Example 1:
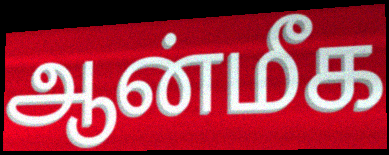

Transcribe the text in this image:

ஆன்மீக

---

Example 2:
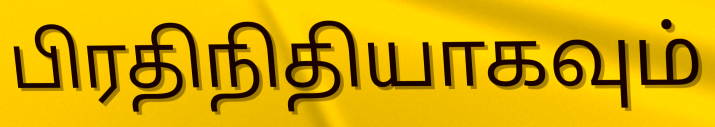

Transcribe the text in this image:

பிரதிநிதியாகவும்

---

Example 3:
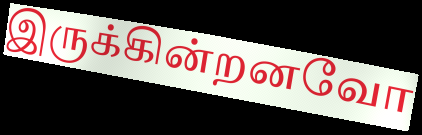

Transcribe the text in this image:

இருக்கின்றனவோ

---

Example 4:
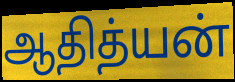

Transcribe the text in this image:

ஆதித்யன்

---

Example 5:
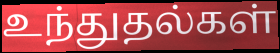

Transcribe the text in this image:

உந்துதல்கள்